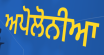
ਅਪੋਲੋਨੀਆ